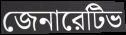
জেনারেটিভ